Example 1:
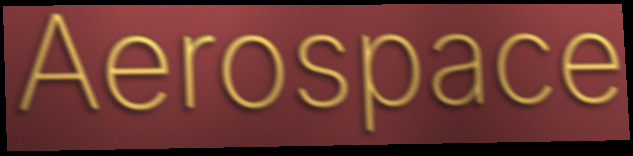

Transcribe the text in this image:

Aerospace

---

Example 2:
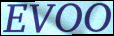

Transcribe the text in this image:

EVOO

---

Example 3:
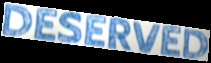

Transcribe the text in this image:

DESERVED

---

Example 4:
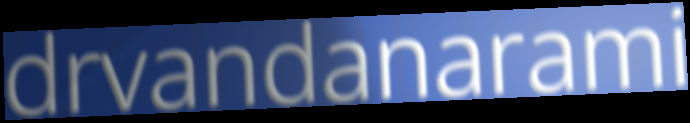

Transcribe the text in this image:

drvandanarami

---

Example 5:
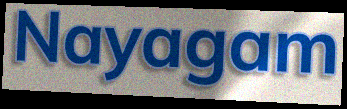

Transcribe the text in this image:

Nayagam